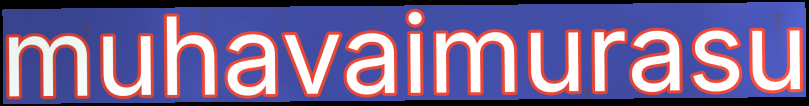
muhavaimurasu